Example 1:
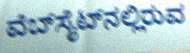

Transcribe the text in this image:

ವೆಬ್‌ಸೈಟ್‌ನಲ್ಲಿರುವ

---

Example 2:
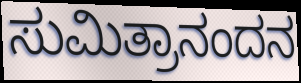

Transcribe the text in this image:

ಸುಮಿತ್ರಾನಂದನ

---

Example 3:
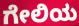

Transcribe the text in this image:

ಗೇಲಿಯ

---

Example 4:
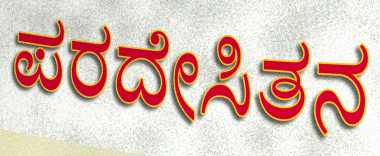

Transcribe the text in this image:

ಪರದೇಸಿತನ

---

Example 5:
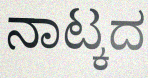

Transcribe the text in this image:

ನಾಟ್ಕದ